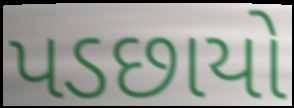
પડછાયો